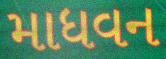
માધવન